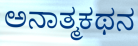
ಅನಾತ್ಮಕಥನ